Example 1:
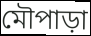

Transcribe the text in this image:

মৌপাড়া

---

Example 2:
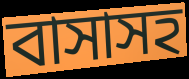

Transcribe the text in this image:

বাসাসহ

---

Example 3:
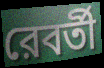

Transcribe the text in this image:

রেবর্তী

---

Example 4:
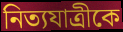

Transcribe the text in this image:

নিত্যযাত্রীকে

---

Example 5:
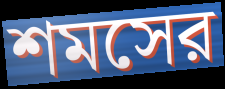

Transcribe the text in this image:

শমসের